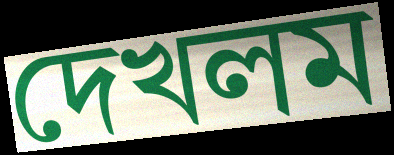
দেখলম